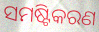
ସମଷ୍ଟିକରଣ